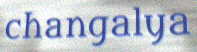
changalya